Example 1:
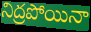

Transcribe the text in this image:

నిద్రపోయినా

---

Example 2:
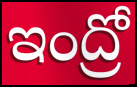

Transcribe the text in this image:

ఇంద్రో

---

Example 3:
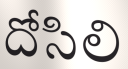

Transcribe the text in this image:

దోసిలి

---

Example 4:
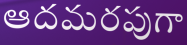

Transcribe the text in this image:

ఆదమరపుగా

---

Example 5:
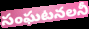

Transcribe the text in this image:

సంఘటనలనీ